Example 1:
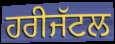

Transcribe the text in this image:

ਹਰੀਜੱਟਲ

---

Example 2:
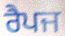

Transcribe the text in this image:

ਰੈਪਜ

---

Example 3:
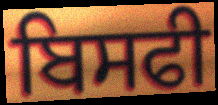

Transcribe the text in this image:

ਬਿਸਫੀ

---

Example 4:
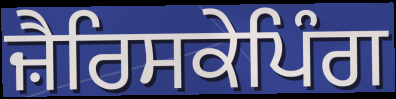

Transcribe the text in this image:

ਜ਼ੈਰਿਸਕੇਪਿੰਗ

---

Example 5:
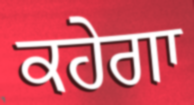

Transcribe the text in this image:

ਕਹੇਗਾ